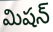
మిషన్